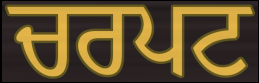
ਚਰਪਟ